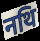
नथि